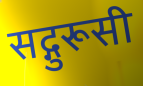
सद्गुरूसी